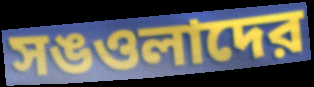
সঙওলাদের